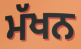
ਮੱਖਨ